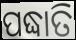
ପଦ୍ଧାତି